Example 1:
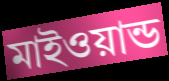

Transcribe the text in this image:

মাইওয়ান্ড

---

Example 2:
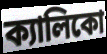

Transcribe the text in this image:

ক্যালিকো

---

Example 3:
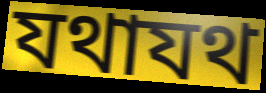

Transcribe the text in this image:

যথাযথ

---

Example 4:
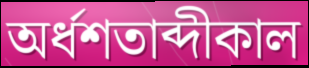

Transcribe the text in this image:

অর্ধশতাব্দীকাল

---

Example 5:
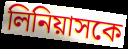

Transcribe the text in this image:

লিনিয়াসকে